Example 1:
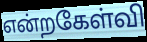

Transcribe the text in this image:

என்றகேள்வி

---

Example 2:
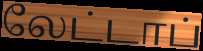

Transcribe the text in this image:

லேட்டாப்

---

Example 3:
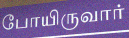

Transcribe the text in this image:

போயிருவார்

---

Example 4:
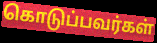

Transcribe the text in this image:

கொடுப்பவர்கள்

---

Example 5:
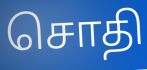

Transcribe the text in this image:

சொதி